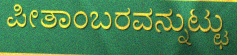
ಪೀತಾಂಬರವನ್ನುಟ್ಟು